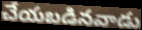
చేయబడినవాడు